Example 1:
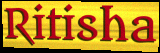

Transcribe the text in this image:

Ritisha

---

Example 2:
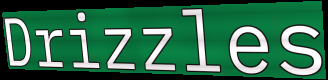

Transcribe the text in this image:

Drizzles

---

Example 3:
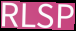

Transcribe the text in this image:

RLSP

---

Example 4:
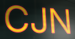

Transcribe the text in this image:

CJN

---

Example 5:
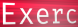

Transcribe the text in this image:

Exerc